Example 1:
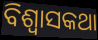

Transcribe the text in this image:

ବିଶ୍ଵାସକଥା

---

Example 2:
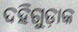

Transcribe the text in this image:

ଦହିଗୁଡ଼ାକ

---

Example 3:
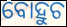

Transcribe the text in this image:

ବୋହୁଚ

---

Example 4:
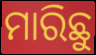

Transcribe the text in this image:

ମାରିଛୁ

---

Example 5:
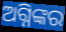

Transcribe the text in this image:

ଅଗ୍ନିଙ୍କର